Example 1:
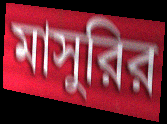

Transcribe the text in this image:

মাসুরির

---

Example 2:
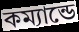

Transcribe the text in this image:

কম্যান্ডে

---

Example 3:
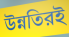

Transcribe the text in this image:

উন্নতিরই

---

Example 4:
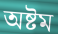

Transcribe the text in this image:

অষ্টম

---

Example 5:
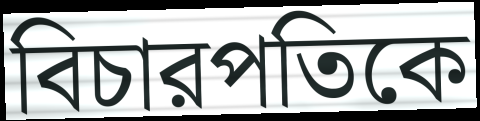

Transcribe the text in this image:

বিচারপতিকে